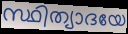
സ്ഥിത്യാദയേ